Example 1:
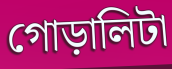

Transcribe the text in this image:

গোড়ালিটা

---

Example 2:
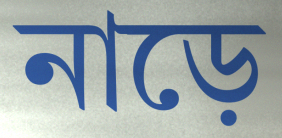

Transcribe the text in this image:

নাড়ে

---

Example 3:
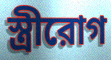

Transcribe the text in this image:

স্ত্রীরোগ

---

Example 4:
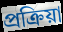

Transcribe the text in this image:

প্রক্রিয়া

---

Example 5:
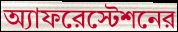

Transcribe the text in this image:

অ্যাফরেস্টেশনের